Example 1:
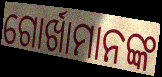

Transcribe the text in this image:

ଗୋର୍ଖାମାନଙ୍କ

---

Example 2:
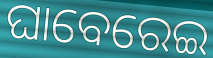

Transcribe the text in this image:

ଘାବେରେଇ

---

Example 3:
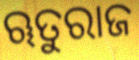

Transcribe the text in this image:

ୠତୁରାଜ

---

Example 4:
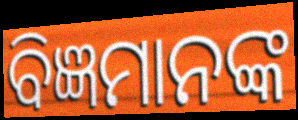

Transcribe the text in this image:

ବିଜ୍ଞମାନଙ୍କ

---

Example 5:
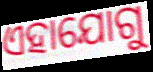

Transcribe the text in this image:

ଏହାଯୋଗୁ